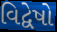
વિદ્વેષો